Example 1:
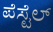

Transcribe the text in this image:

ಪೆಸ್ಟೆಲ್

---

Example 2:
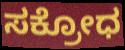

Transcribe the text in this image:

ಸಕ್ರೋಧ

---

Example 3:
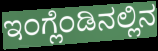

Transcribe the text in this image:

ಇಂಗ್ಲೆಂಡಿನಲ್ಲಿನ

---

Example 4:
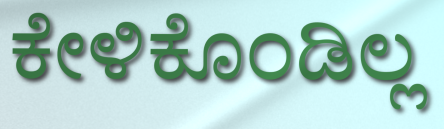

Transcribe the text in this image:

ಕೇಳಿಕೊಂಡಿಲ್ಲ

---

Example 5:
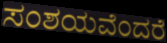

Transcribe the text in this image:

ಸಂಶಯವೆಂದರೆ